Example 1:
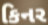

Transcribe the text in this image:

કિનર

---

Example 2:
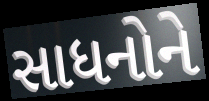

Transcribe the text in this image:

સાધનોને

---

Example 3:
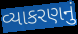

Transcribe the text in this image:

વ્યાકરણનું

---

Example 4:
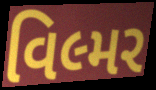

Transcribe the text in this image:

વિલ્મર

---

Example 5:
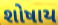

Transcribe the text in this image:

શોષાય